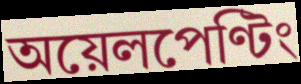
অয়েলপেণ্টিং